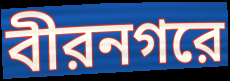
বীরনগরে